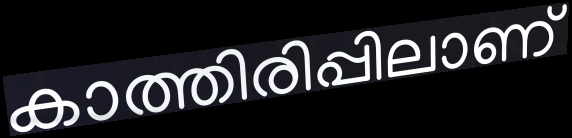
കാത്തിരിപ്പിലാണ്